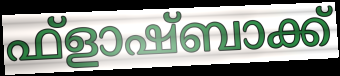
ഫ്ളാഷ്ബാക്ക്